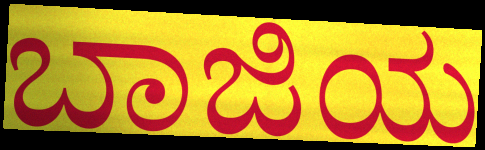
ಬಾಜಿಯ